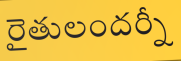
రైతులందర్నీ